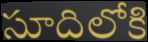
సూదిలోకి